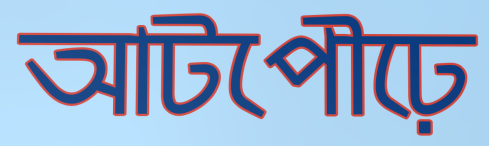
আটপৌঢ়ে